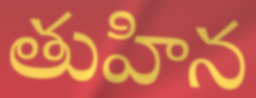
తుహిన